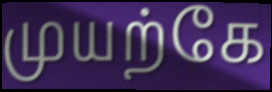
முயற்கே